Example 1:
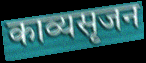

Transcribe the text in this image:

काव्यसृजन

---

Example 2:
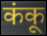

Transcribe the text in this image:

कंकू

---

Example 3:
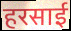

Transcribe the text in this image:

हरसाई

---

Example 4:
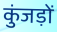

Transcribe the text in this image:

कुंजड़ों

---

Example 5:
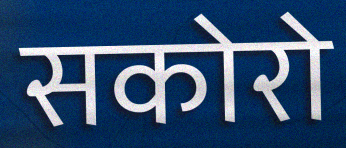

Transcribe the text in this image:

सकोरो